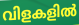
വിളകളിൽ